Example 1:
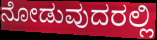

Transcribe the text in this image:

ನೋಡುವುದರಲ್ಲಿ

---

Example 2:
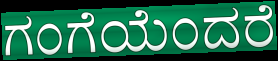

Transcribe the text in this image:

ಗಂಗೆಯೆಂದರೆ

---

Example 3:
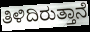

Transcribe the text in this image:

ತಿಳಿದಿರುತ್ತಾನೆ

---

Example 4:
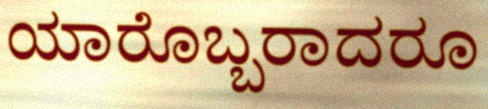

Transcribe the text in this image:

ಯಾರೊಬ್ಬರಾದರೂ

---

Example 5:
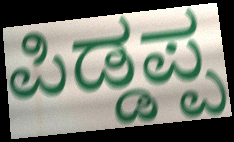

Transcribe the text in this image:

ಪಿಡ್ಡಪ್ಪ